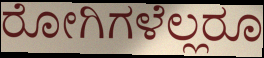
ರೋಗಿಗಳೆಲ್ಲರೂ